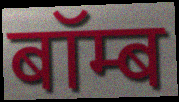
बॉम्ब